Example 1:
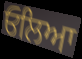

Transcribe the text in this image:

ਓਲਿਆ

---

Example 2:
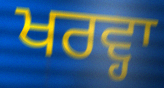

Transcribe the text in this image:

ਖਰਵ੍ਹਾ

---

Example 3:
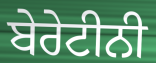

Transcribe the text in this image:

ਬੇਰੇਟੀਨੀ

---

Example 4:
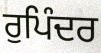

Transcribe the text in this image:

ਰੁਪਿੰਦਰ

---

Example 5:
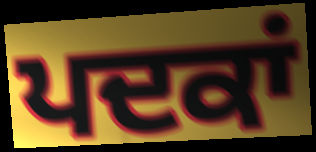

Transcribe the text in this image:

ਪਦਕਾਂ